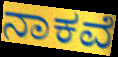
ನಾಕವೆ